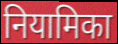
नियामिका